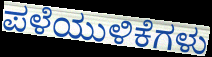
ಪಳೆಯುಳಿಕೆಗಳು